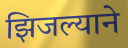
झिजल्याने